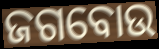
ଜଗବୋଉ